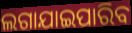
ଲଗାଯାଇପାରିବ